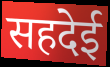
सहदेई